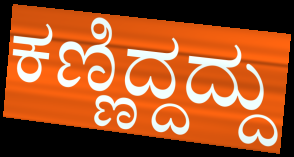
ಕಣ್ಣಿದ್ದದ್ದು